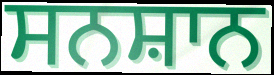
ਸਨਸ਼ਾਨ